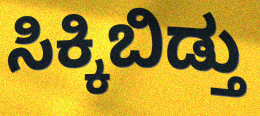
ಸಿಕ್ಕಿಬಿಡ್ತು